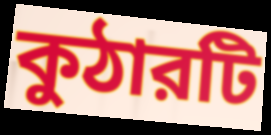
কুঠারটি